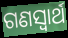
ଗଣସ୍ୱାର୍ଥ